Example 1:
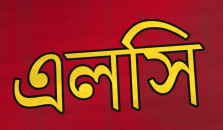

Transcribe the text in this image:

এলসি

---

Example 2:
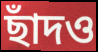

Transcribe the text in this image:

ছাঁদও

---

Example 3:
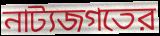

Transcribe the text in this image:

নাট্যজগতের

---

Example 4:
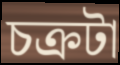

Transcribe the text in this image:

চক্রটা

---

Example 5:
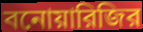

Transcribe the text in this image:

বনোয়ারিজির